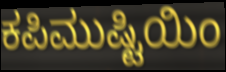
ಕಪಿಮುಷ್ಟಿಯಿಂ